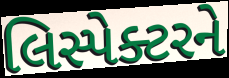
લિસ્પેક્ટરને